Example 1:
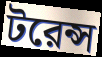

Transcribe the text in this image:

টরেন্স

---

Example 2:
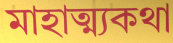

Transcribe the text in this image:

মাহাত্ম্যকথা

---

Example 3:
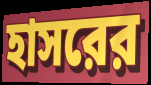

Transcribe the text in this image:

হাসরের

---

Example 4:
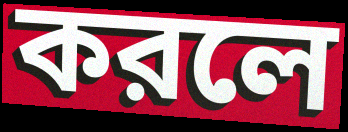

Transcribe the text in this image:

করলে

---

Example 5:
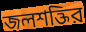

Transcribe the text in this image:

জলশক্তির